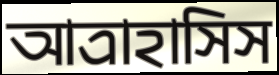
আত্রাহাসিস